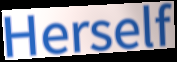
Herself